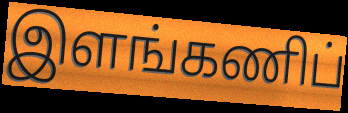
இளங்கணிப்